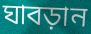
ঘাবড়ান